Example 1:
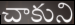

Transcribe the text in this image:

చాకుని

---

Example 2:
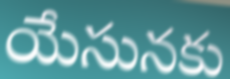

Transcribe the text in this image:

యేసునకు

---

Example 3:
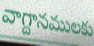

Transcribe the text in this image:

వాగ్దానములకు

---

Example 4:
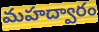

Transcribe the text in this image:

మహద్వారం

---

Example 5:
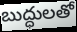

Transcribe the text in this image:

బుద్ధులతో